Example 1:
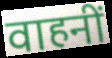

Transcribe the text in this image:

वाहनीं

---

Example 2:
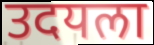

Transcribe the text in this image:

उदयला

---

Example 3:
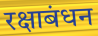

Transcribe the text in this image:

रक्षाबंधन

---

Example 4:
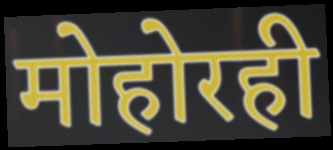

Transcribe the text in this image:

मोहोरही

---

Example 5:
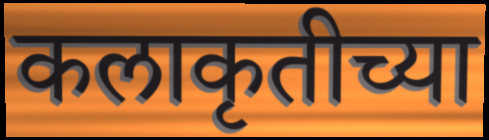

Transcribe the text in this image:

कलाकृतीच्या